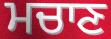
ਮਚਾਣ